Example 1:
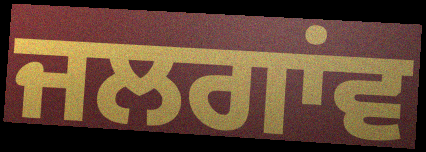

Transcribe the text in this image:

ਜਲਗਾਂਵ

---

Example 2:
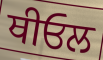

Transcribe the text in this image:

ਥੀਓਲ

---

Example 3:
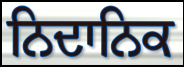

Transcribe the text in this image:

ਨਿਦਾਨਿਕ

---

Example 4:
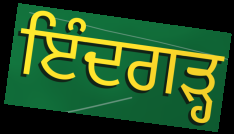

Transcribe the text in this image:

ਇੰਦਗੜ੍ਹ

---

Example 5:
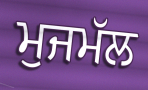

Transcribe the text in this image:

ਮੁਜਮੱਲ